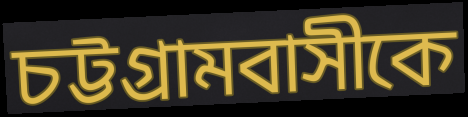
চট্টগ্রামবাসীকে